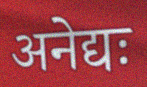
अनेद्यः